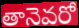
తానెవరో